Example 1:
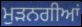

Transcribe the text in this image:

ਮੁੜਨਗੀਆਂ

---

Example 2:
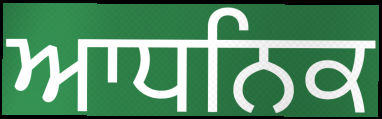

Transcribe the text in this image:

ਆਧਨਿਕ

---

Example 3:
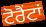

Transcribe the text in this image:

ਟੋਰੈਂਟਾਂ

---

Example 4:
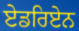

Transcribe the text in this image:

ਏਡਰਿਏਨ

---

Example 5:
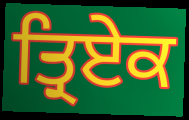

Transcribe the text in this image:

ਤ੍ਰਿਏਕ